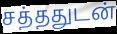
சத்ததுடன்